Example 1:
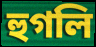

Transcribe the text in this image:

হুগলি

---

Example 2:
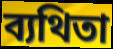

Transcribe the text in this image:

ব্যথিতা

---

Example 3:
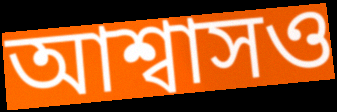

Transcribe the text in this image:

আশ্বাসও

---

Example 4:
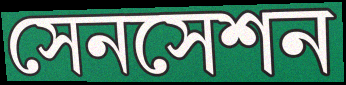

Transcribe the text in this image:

সেনসেশন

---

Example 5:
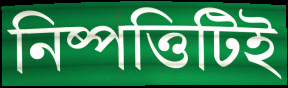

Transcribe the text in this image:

নিষ্পত্তিটিই